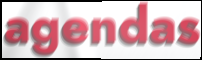
agendas